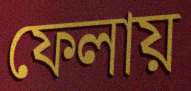
ফেলায়